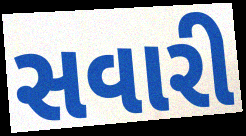
સવારી